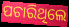
ପଚାରିଥିଲେ